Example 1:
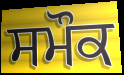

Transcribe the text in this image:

ਸਮੌਕ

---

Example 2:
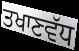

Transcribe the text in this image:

ਤਖਾਣਵੱਧ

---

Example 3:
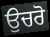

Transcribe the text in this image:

ਉਚਰੋ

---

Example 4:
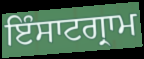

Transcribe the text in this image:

ਇੰਸਾਟਗ੍ਰਾਮ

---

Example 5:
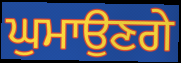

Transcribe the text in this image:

ਘੁਮਾਉਣਗੇ